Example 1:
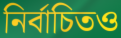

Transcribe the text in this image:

নির্বাচিতও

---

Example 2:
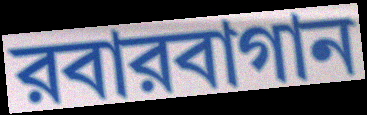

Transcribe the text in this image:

রবারবাগান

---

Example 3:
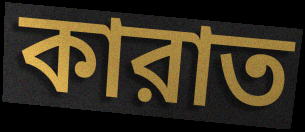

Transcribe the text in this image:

কারাত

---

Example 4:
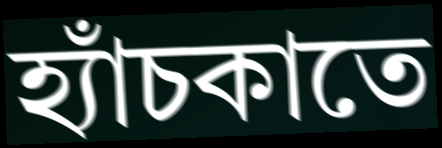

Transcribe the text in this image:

হ্যাঁচকাতে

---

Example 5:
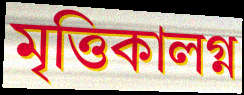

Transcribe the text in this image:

মৃত্তিকালগ্ন